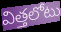
విత్తలోటు